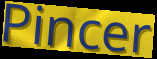
Pincer